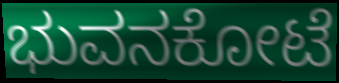
ಭುವನಕೋಟೆ